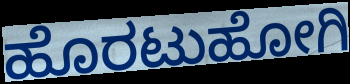
ಹೊರಟುಹೋಗಿ